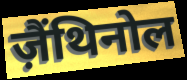
ज़ैंथिनोल